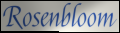
Rosenbloom